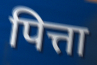
पित्ता